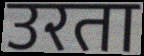
उरता